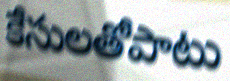
కేసులతోపాటు